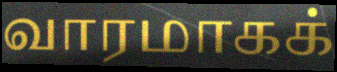
வாரமாகக்